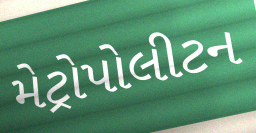
મેટ્રોપોલીટન